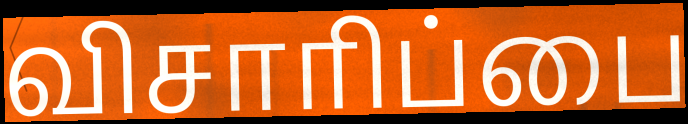
விசாரிப்பை